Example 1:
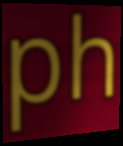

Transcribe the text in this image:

ph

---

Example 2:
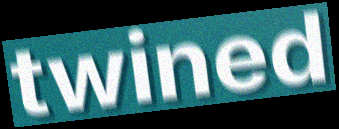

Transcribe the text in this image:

twined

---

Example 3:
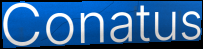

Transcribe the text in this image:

Conatus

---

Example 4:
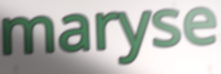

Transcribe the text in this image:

maryse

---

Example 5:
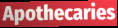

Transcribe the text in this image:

Apothecaries